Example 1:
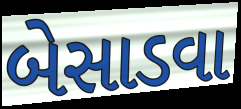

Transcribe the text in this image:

બેસાડવા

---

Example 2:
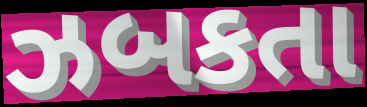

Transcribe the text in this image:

ઝબકતા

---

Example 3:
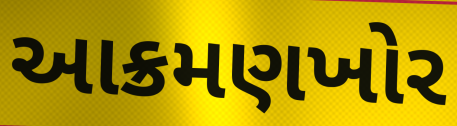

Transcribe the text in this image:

આક્રમણખોર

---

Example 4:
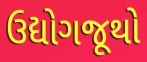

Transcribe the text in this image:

ઉદ્યોગજૂથો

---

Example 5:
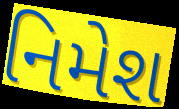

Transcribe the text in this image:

નિમેશ